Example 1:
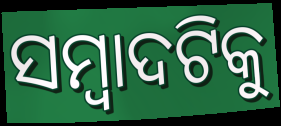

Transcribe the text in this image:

ସମ୍ୱାଦଟିକୁ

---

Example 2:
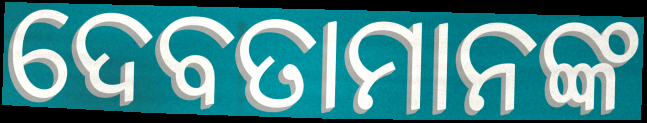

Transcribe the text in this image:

ଦେବତାମାନଙ୍କ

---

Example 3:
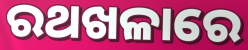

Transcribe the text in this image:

ରଥଖଳାରେ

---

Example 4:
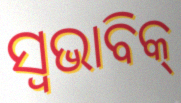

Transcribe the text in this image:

ସ୍ୱଭାବିକ୍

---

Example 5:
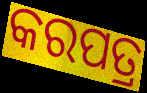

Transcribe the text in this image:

କରପତ୍ର